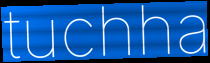
tuchha